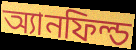
অ্যানফিল্ড